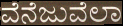
ವೆನೆಜುವೆಲಾ